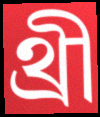
থ্রী